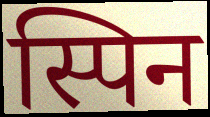
स्पिन